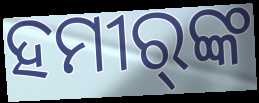
ହମୀର୍‍ଙ୍କ